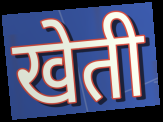
खेती